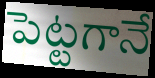
పెట్టగానే